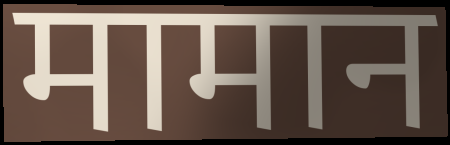
मामान